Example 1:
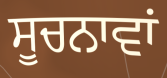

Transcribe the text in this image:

ਸੂਚਨਾਵਾਂ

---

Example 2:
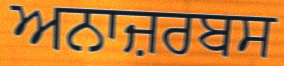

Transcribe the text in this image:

ਅਨਾਜ਼ਰਬਸ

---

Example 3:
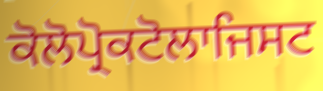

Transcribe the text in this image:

ਕੋਲੋਪ੍ਰੋਕਟੋਲਾਜਿਸਟ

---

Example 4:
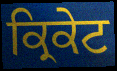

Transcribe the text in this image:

ਕ੍ਰਿਕੇਟ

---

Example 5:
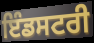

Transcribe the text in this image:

ਇੰਡਸਟਰੀ